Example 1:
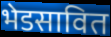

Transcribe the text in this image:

भेडसावित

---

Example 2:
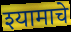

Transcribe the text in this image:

श्यामाचे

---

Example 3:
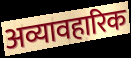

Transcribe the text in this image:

अव्यावहारिक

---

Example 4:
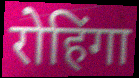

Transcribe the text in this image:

रोहिंगा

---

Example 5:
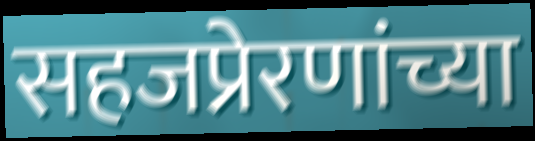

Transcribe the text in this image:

सहजप्रेरणांच्या